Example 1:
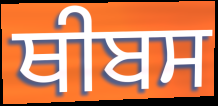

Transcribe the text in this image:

ਥੀਬਸ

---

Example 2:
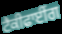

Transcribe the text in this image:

ਟੈਕੀਫਾਈਂਗ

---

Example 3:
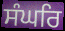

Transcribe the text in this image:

ਸੰਘਰਿ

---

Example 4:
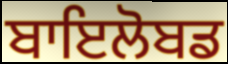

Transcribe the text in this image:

ਬਾਇਲੋਬਡ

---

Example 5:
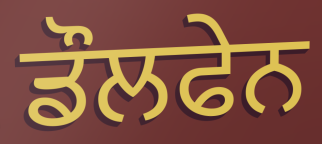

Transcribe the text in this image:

ਡੌਲਫੇਨ